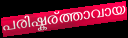
പരിഷ്കര്ത്താവായ